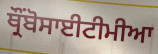
ਥ੍ਰੌਂਬੋਸਾਈਟੀਮੀਆ